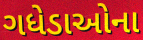
ગધેડાઓના